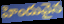
హిందువైన